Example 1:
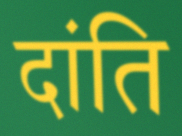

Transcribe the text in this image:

दांति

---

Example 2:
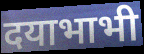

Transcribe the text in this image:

दयाभाभी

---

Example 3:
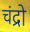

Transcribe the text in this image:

चंद्रो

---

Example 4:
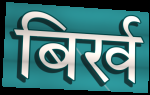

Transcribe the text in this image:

बिर्ख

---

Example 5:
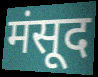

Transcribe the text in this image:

मंसूद